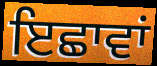
ਇਛਾਵਾਂ